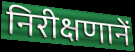
निरीक्षणानें